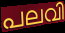
പലവി